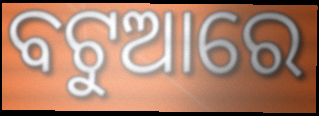
ବଟୁଆରେ